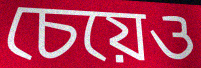
চেয়েও